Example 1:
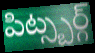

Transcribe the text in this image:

పిట్స్బర్గ్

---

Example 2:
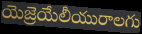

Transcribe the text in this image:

యెజ్రెయేలీయురాలగు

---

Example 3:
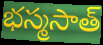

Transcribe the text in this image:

భస్మసాత్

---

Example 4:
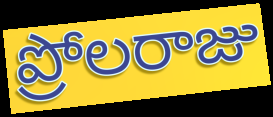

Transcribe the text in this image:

ప్రోలరాజు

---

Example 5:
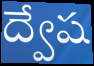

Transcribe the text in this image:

ద్వేష